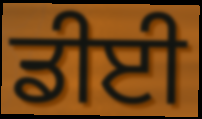
ਡੀਈ